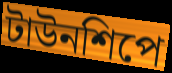
টাউনশিপে